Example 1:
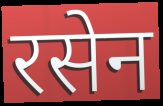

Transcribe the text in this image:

रसेन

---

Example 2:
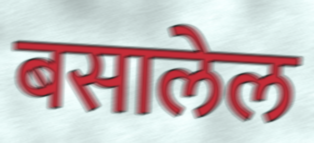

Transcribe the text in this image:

बसालेल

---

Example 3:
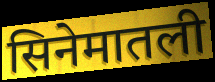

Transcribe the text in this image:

सिनेमातली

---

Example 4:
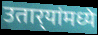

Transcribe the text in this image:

उतार्‍यांमध्ये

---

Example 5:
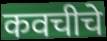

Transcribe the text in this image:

कवचीचे